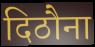
दिठौना